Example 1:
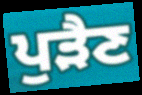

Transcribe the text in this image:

ਪੁੜੈਣ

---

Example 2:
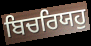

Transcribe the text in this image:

ਬਿਚਰਿਯਹੁ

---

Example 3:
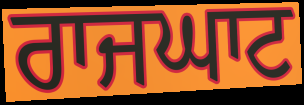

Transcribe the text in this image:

ਰਾਜਘਾਟ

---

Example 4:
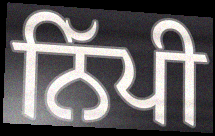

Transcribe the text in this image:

ਨਿੱਪੀ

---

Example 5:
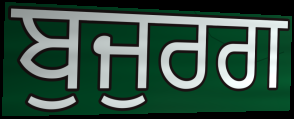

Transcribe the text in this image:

ਬੁਜੁਰਗ